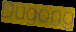
Dugong